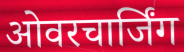
ओवरचार्जिंग